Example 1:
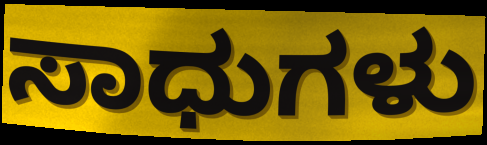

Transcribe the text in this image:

ಸಾಧುಗಳು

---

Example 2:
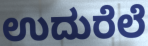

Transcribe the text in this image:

ಉದುರೆಲೆ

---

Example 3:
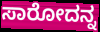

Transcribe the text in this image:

ಸಾರೋದನ್ನ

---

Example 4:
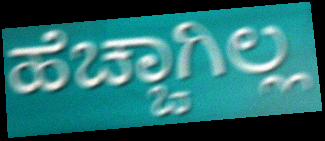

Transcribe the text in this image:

ಹೆಚ್ಚಾಗಿಲ್ಲ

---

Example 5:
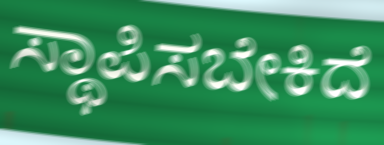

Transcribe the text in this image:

ಸ್ಥಾಪಿಸಬೇಕಿದೆ